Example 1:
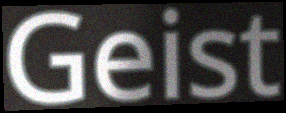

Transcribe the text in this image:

Geist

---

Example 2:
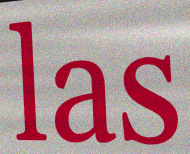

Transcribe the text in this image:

las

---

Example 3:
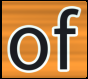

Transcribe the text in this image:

of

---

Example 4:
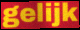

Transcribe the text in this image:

gelijk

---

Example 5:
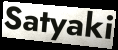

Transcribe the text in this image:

Satyaki